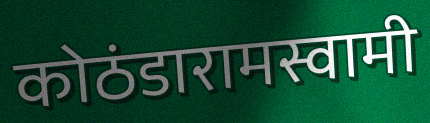
कोठंडारामस्वामी